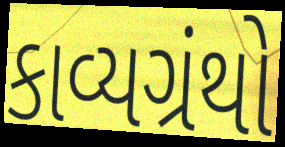
કાવ્યગ્રંથો